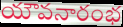
యౌవనారంభ